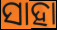
ସାହା